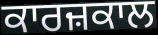
ਕਾਰਜ਼ਕਾਲ